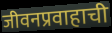
जीवनप्रवाहाची